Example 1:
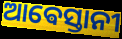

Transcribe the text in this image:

ଆଵେସ୍ତାନୀ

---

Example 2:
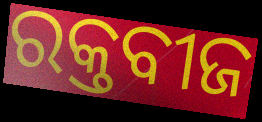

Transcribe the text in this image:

ରକ୍ତବୀଜ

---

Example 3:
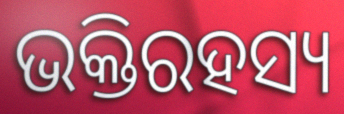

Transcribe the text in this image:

ଭକ୍ତିରହସ୍ୟ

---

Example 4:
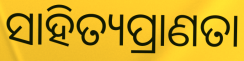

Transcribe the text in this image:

ସାହିତ୍ୟପ୍ରାଣତା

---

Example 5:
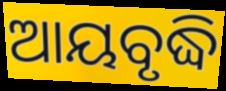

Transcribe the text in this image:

ଆୟବୃଦ୍ଧି